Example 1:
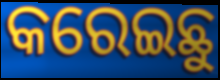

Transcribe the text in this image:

କରେଇଛୁ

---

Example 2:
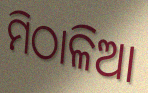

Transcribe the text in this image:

ମିଠାଳିଆ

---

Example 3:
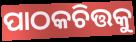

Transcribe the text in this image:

ପାଠକଚିତ୍ତକୁ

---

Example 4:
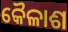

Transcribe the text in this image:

କୈଳାଶ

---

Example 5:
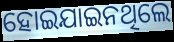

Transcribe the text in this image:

ହୋଇଯାଇନଥିଲେ